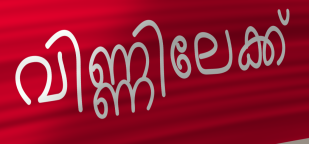
വിണ്ണിലേക്ക്